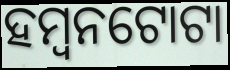
ହମ୍ବନଟୋଟା